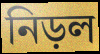
নিড়ল